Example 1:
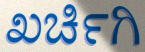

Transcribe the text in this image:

ಖರ್ಚಿಗಿ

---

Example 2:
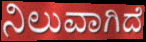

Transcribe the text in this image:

ನಿಲುವಾಗಿದೆ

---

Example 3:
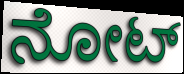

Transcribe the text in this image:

ನೋಟ್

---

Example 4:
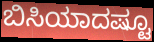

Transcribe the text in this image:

ಬಿಸಿಯಾದಷ್ಟೂ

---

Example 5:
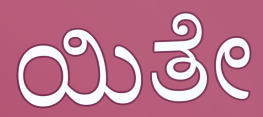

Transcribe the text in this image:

ಯಿತೇ